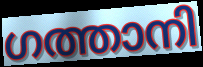
ഗത്താനി